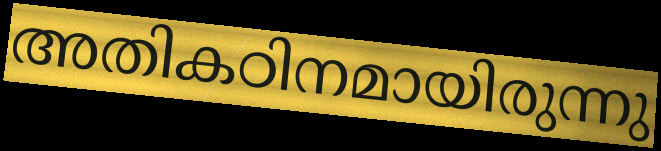
അതികഠിനമായിരുന്നു